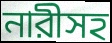
নারীসহ